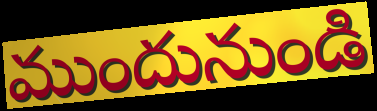
ముందునుండి